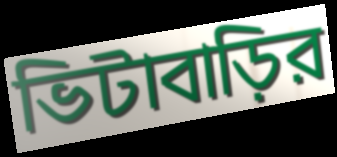
ভিটাবাড়ির